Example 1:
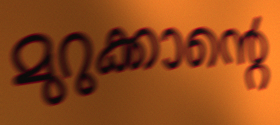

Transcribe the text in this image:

മുറുക്കാന്റെ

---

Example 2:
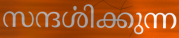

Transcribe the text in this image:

സന്ദൎശിക്കുന്ന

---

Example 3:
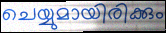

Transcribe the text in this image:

ചെയ്യുമായിരിക്കും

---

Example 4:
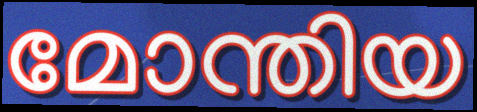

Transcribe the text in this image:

മോന്തിയ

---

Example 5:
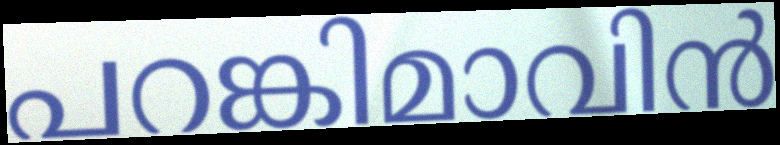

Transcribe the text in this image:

പറങ്കിമാവിൻ